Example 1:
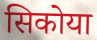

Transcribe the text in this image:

सिकोया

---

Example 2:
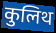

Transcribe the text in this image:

कुलिथ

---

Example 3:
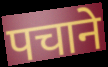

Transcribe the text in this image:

पचाने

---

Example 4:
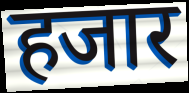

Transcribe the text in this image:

हजार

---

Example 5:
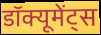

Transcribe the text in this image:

डॉक्यूमेंट्स